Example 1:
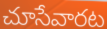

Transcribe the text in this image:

చూసేవారట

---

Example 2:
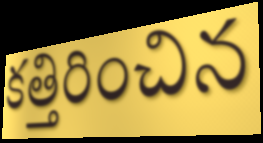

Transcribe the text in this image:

కత్తిరించిన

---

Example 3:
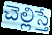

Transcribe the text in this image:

చెల్లిస్తే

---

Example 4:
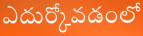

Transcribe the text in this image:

ఎదుర్కోవడంలో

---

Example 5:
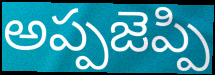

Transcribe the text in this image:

అప్పజెప్పి